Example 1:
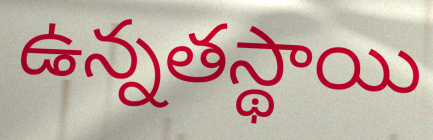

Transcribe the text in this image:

ఉన్నతస్థాయి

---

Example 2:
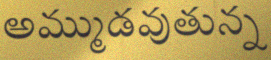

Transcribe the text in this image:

అమ్ముడవుతున్న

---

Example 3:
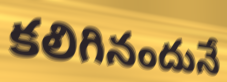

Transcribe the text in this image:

కలిగినందునే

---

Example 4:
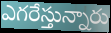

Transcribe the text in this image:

ఎగరేస్తున్నారు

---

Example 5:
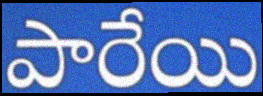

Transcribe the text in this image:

పారేయి